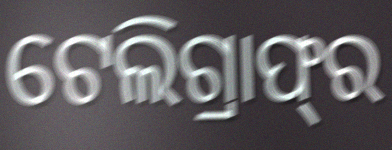
ଟେଲିଗ୍ରାଫ୍‌ର